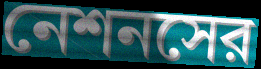
নেশনসের